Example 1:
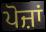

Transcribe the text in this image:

ਪੋਜ਼ਾਂ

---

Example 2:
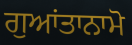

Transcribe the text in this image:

ਗੁਆਂਤਾਨਾਮੋ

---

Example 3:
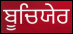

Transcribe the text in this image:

ਬੂਚਿਯੇਰ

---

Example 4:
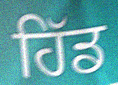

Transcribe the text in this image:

ਹਿੱਡ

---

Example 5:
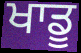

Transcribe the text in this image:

ਖਾਡੂ